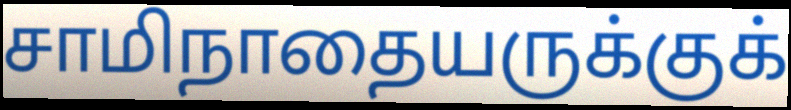
சாமிநாதையருக்குக்